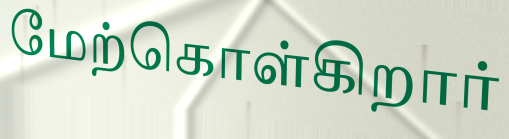
மேற்கொள்கிறார்